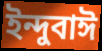
ইন্দুবাঈ